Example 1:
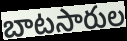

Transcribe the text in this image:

బాటసారుల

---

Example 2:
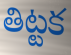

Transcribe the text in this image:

తిట్టక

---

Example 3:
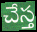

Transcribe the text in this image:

చేస్త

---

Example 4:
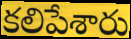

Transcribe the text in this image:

కలిపేశారు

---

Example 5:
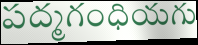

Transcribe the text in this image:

పద్మగంధియగు